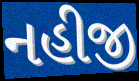
નહીજી